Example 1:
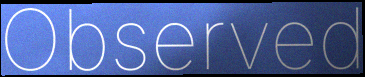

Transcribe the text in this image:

Observed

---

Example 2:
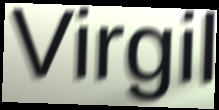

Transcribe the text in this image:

Virgil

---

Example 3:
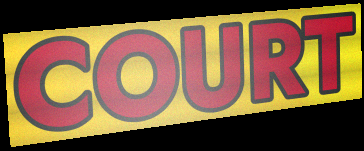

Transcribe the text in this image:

COURT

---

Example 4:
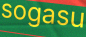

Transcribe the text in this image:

sogasu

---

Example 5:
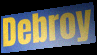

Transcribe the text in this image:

Debroy